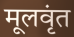
मूलवृंत